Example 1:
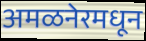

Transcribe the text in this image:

अमळनेरमधून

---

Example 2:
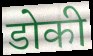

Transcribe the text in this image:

डोकी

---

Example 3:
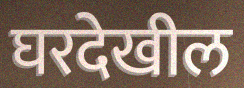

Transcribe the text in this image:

घरदेखील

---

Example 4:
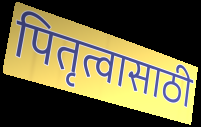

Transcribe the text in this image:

पितृत्वासाठी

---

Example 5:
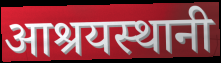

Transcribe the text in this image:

आश्रयस्थानी